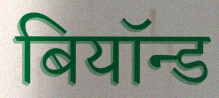
बियॉन्ड